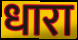
धारा